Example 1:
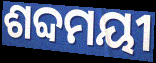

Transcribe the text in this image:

ଶବ୍ଦମୟୀ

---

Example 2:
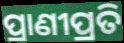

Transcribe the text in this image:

ପ୍ରାଣୀପ୍ରତି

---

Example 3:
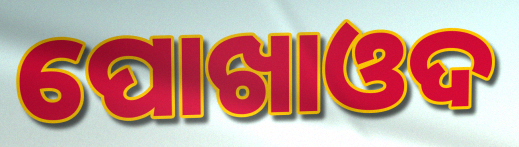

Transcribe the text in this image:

ପୋଖାଓଦ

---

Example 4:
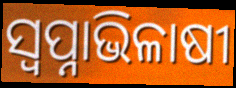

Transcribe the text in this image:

ସ୍ଵପ୍ନାଭିଳାଷୀ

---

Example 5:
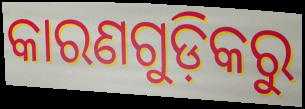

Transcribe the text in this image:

କାରଣଗୁଡ଼ିକରୁ